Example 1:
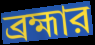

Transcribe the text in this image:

ব্রহ্মার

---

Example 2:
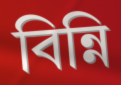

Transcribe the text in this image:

বিন্নি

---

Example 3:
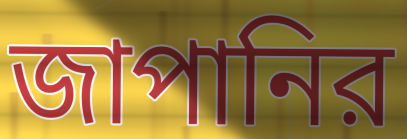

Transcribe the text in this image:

জাপানির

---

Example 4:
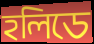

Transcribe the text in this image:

হলিডে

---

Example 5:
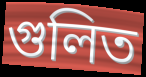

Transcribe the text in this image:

গুলিত